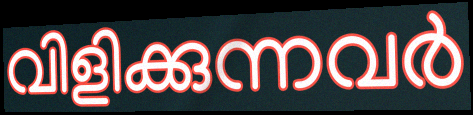
വിളിക്കുന്നവർ